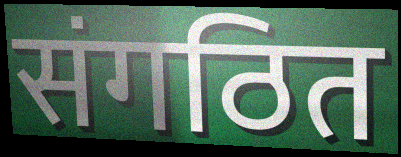
संगठित